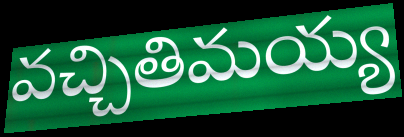
వచ్చితిమయ్య